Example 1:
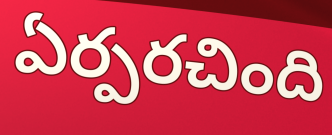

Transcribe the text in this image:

ఏర్పరచింది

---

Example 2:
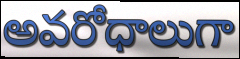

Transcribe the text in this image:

అవరోధాలుగా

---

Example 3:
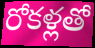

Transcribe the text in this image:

రోకళ్లతో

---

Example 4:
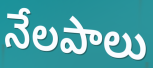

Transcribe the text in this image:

నేలపాలు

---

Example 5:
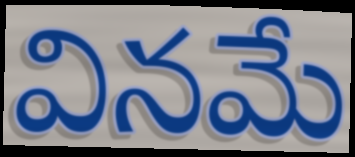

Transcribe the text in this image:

వినమే